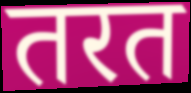
तरत